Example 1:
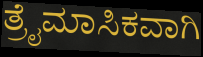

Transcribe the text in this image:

ತ್ರೈಮಾಸಿಕವಾಗಿ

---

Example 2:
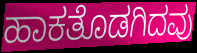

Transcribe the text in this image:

ಹಾಕತೊಡಗಿದವು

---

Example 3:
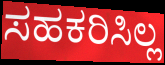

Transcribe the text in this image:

ಸಹಕರಿಸಿಲ್ಲ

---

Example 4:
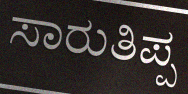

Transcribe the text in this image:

ಸಾರುತಿಪ್ಪ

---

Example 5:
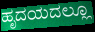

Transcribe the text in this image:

ಹೃದಯದಲ್ಲೂ